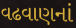
વઢવાણનાં